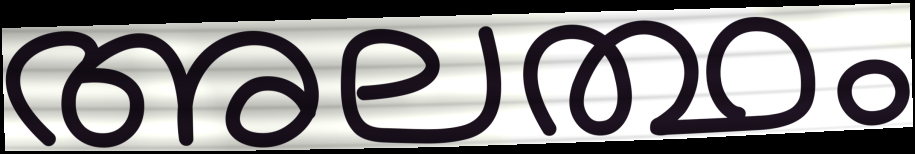
അലത്ഥം